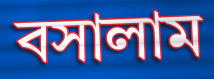
বসালাম